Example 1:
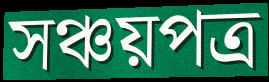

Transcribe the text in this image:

সঞ্চয়পত্র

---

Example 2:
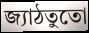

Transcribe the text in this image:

জ্যাঠতুতো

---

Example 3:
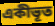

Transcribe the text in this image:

একীভূত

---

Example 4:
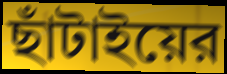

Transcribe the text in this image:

ছাঁটাইয়ের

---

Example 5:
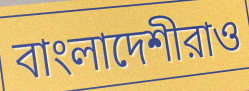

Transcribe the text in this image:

বাংলাদেশীরাও